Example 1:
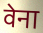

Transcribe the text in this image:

वेना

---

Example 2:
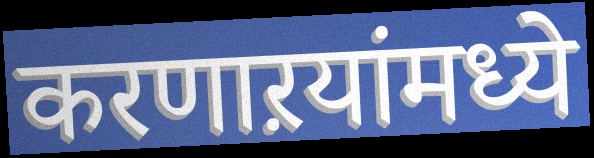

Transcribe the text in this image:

करणाऱयांमध्ये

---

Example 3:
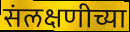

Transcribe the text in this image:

संलक्षणीच्या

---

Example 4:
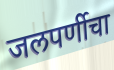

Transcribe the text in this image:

जलपर्णीचा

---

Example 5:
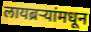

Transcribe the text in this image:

लायब्रऱ्यांमधून